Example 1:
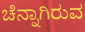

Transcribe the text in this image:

ಚೆನ್ನಾಗಿರುವ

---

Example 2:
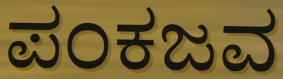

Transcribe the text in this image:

ಪಂಕಜವ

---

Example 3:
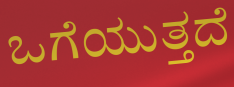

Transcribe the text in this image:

ಒಗೆಯುತ್ತದೆ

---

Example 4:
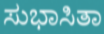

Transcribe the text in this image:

ಸುಭಾಸಿತಾ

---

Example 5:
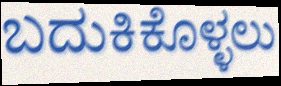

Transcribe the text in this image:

ಬದುಕಿಕೊಳ್ಳಲು